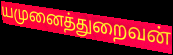
யமுனைத்துறைவன்